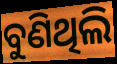
ବୁଣିଥିଲି